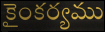
కైంకర్యము